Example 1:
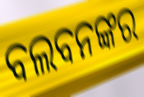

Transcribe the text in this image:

ବଲବନଙ୍କର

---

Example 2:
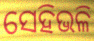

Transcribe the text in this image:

ସେହିଭଳି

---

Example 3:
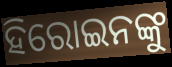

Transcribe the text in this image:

ହିରୋଇନଙ୍କୁ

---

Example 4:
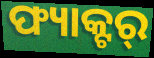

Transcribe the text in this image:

ଫ୍ୟାକ୍ଟର୍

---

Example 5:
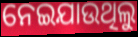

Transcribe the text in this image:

ନେଇଯାଉଥିଲୁ